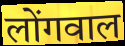
लोंगवाल